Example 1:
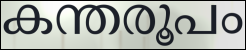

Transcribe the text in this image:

കന്തരൂപം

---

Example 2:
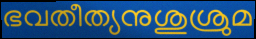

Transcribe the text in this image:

ഭവതീത്യനുശുശ്രുമ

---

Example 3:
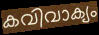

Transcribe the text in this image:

കവിവാക്യം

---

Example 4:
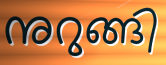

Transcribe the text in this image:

നുറുങ്ങി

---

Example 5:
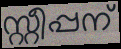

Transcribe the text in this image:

സ്റ്റീപ്പന്